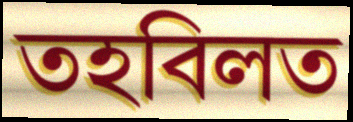
তহবিলত